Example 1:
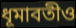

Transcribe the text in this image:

ধূমাবতীও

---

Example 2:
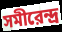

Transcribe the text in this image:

সমীরেন্দ্র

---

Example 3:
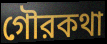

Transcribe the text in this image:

গৌরকথা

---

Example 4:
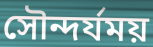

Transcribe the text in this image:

সৌন্দর্যময়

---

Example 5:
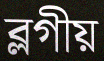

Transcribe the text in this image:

ব্লগীয়